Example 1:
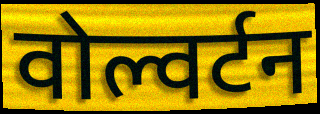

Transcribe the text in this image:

वोल्वर्टन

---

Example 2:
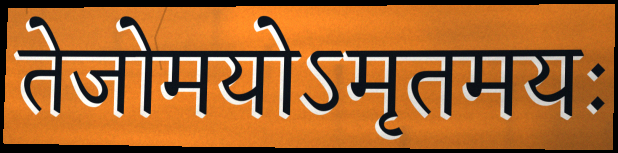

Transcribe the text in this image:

तेजोमयोऽमृतमयः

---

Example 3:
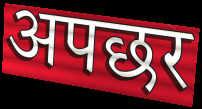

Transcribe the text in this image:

अपछर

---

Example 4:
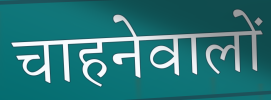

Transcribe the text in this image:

चाहनेवालों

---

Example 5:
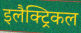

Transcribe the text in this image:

इलैक्ट्रिकल